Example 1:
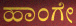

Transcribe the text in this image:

ಹಾಂಗೇ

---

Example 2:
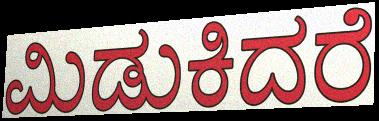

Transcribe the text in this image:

ಮಿಡುಕಿದರೆ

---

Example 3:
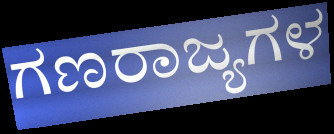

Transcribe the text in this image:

ಗಣರಾಜ್ಯಗಳ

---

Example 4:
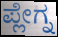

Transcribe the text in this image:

ಪ್ಲೇಗ್ನ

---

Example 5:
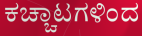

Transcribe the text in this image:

ಕಚ್ಚಾಟಗಳಿಂದ